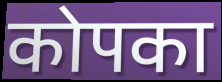
कोपका